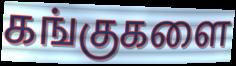
கங்குகளை